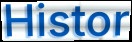
Histor